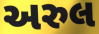
અરુલ